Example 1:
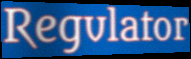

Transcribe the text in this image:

Regulator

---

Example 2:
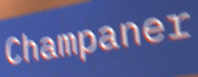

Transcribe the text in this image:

Champaner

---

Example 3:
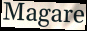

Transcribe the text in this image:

Magare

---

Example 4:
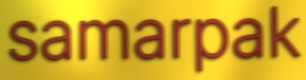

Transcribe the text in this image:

samarpak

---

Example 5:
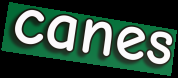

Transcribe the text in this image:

canes